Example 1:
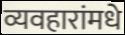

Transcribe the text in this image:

व्यवहारांमधे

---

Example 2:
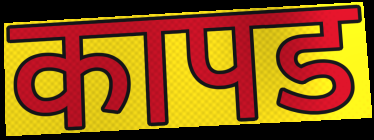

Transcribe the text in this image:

कापड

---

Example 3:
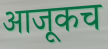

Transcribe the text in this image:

आजूकच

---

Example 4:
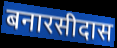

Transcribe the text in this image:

बनारसीदास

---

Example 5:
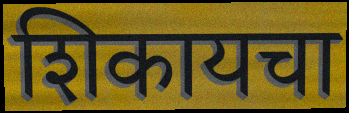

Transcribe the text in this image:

शिकायचा